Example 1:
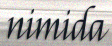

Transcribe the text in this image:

nimida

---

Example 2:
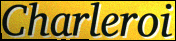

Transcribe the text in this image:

Charleroi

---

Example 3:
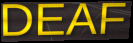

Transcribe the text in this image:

DEAF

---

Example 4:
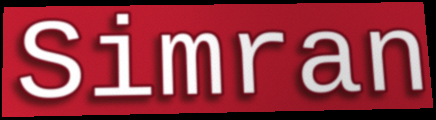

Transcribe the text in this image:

Simran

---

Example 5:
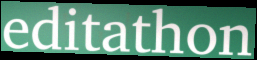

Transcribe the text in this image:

editathon